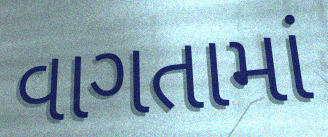
વાગતામાં